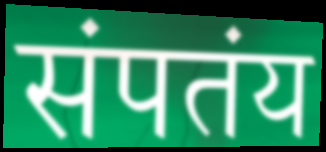
संपतंय